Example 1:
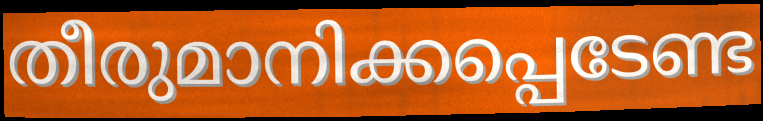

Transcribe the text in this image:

തീരുമാനിക്കപ്പെടേണ്ട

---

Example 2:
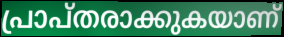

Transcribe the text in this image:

പ്രാപ്തരാക്കുകയാണ്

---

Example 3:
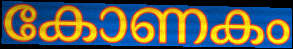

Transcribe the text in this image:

കോണകം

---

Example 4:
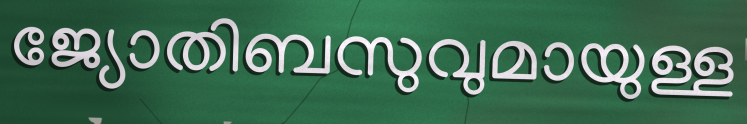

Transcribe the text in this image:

ജ്യോതിബസുവുമായുള്ള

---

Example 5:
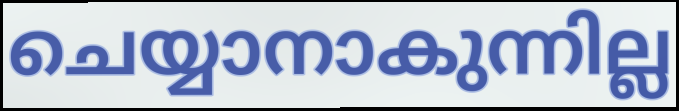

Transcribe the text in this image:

ചെയ്യാനാകുന്നില്ല